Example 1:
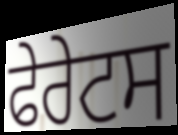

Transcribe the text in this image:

ਫੇਰੇਟਸ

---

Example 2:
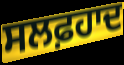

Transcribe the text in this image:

ਸਲਫ਼ਹਾਦ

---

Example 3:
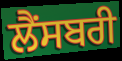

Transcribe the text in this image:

ਲੈਂਸਬਰੀ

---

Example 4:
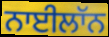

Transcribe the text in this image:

ਨਾਈਲਾੱਨ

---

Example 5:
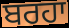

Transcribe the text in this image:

ਬਰਹਾ